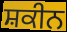
ਸ਼ਕੀਨ